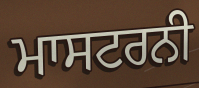
ਮਾਸਟਰਨੀ